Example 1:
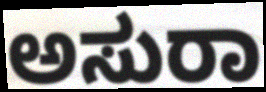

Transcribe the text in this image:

ಅಸುರಾ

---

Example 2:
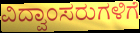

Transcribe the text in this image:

ವಿದ್ವಾಂಸರುಗಳಿಗೆ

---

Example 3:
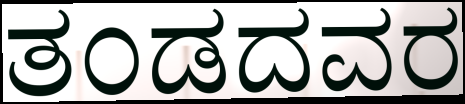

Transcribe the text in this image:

ತಂಡದವರ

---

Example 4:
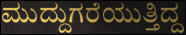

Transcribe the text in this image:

ಮುದ್ದುಗರೆಯುತ್ತಿದ್ದ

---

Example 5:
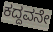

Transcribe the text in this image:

ಕದ್ದವನೇ